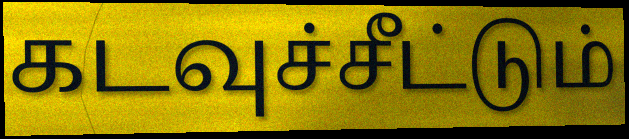
கடவுச்சீட்டும்